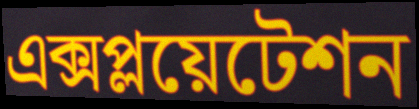
এক্সপ্লয়েটেশন